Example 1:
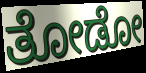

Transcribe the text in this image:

ತೋಡೋ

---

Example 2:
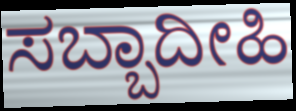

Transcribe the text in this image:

ಸಬ್ಬಾದೀಹಿ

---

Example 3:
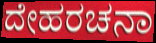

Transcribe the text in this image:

ದೇಹರಚನಾ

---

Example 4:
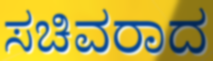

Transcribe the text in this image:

ಸಚಿವರಾದ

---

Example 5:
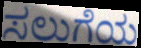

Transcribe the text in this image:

ಸಲುಗೆಯ